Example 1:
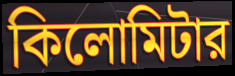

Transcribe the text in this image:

কিলোমিটার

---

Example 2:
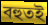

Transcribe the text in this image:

বহুতই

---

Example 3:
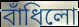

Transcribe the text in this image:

বাঁধিলো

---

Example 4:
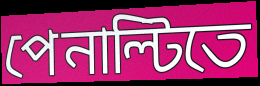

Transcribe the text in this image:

পেনাল্টিতে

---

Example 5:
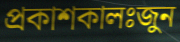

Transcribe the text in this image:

প্রকাশকালঃজুন